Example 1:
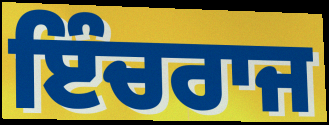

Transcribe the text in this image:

ਇੰਚਰਾਜ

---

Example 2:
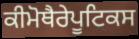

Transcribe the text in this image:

ਕੀਮੋਥੈਰੇਪੂਟਿਕਸ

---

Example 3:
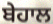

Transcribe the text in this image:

ਬੇਹਾਲ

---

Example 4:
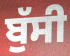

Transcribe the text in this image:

ਬੁੱਸੀ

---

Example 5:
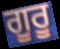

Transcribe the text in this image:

ਗੂਰੂ